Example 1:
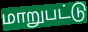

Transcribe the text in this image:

மாறுபட்டு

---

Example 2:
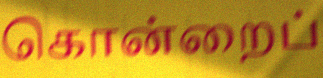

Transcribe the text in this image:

கொன்றைப்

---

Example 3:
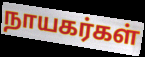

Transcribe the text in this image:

நாயகர்கள்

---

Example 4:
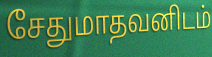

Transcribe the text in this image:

சேதுமாதவனிடம்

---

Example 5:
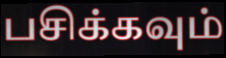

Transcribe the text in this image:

பசிக்கவும்